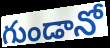
గుండానో